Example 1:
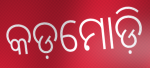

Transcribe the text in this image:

କଡ଼ମୋଡ଼ି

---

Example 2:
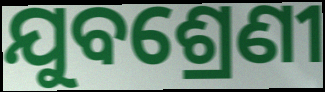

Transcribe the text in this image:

ଯୁବଶ୍ରେଣୀ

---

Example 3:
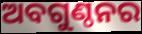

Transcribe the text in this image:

ଅବଗୁଣ୍ଠନର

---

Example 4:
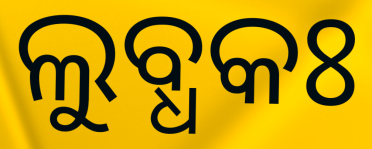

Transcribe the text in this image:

ଲୁବ୍ଧକଃ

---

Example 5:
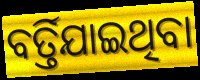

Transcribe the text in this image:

ବର୍ତ୍ତିଯାଇଥିବା